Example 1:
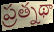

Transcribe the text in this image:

ప్రత్నథా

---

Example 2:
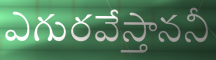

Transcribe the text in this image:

ఎగురవేస్తాననీ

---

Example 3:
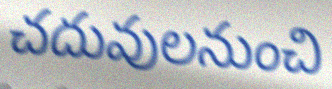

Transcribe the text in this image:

చదువులనుంచి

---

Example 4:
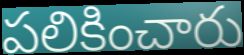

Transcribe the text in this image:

పలికించారు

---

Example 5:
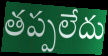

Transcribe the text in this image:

తప్పలేదు